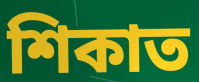
শিকাত